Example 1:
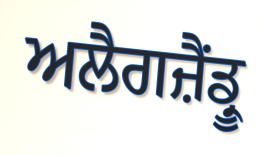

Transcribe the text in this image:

ਅਲੈਗਜ਼ੈਂਡ੍ਰੂ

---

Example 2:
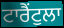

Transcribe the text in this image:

ਟਾਰੈਂਟੁਲਾ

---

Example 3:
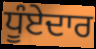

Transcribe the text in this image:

ਧੂੰਏਦਾਰ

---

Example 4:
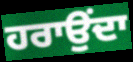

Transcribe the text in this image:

ਹਰਾਉਂਦਾ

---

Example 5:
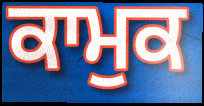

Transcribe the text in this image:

ਕਾਮੁਕ